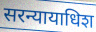
सरन्यायाधिश